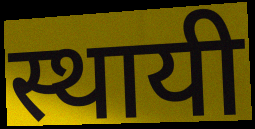
स्थायी